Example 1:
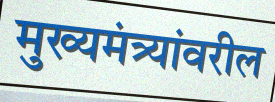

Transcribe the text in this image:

मुख्यमंत्र्यांवरील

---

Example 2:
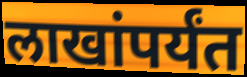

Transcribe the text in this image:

लाखांपर्यंत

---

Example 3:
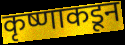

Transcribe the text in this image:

कृष्णाकडून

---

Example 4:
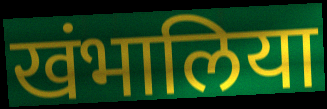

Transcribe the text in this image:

खंभालिया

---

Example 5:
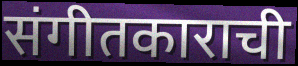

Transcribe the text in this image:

संगीतकाराची